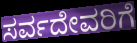
ಸರ್ವದೇವರಿಗೆ